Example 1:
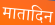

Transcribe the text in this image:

मातादिन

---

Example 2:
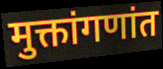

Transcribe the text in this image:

मुक्तांगणांत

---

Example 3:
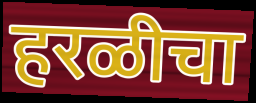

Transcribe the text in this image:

हरळीचा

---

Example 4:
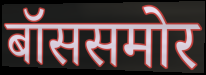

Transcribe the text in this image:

बॉससमोर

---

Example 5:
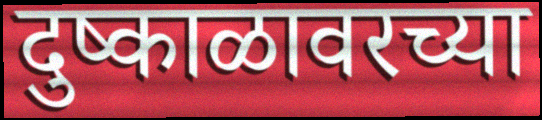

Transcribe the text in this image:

दुष्काळावरच्या